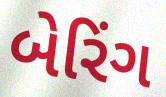
બેરિંગ